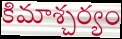
కిమాశ్చర్యం